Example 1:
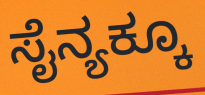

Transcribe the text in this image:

ಸೈನ್ಯಕ್ಕೂ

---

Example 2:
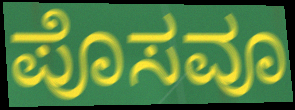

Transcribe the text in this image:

ಪೊಸವೂ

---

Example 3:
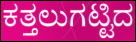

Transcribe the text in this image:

ಕತ್ತಲುಗಟ್ಟಿದ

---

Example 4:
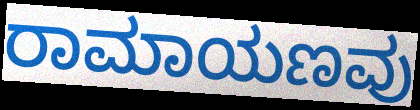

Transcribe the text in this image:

ರಾಮಾಯಣವು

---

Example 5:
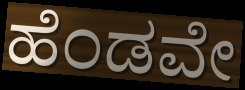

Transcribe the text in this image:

ಹೆಂಡವೇ